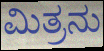
ಮಿತ್ರನು